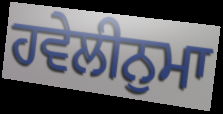
ਹਵੇਲੀਨੁਮਾ